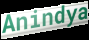
Anindya